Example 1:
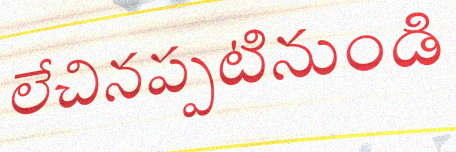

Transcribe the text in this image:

లేచినప్పటినుండి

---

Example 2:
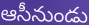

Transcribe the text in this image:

ఆసీనుండు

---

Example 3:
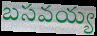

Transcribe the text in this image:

బసవయ్య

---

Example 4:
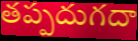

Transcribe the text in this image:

తప్పదుగదా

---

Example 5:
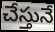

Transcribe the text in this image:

చేస్తునే